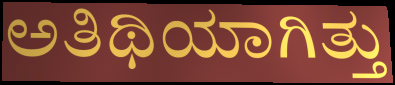
ಅತಿಥಿಯಾಗಿತ್ತು